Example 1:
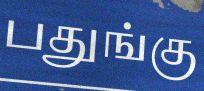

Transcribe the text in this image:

பதுங்கு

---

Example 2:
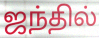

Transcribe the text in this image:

ஜந்தில்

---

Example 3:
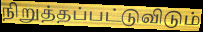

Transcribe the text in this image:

நிறுத்தப்பட்டுவிடும்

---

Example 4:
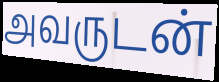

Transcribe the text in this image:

அவருடன்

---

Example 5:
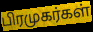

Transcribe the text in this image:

பிரமுகர்கள்